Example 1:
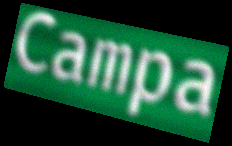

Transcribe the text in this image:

Campa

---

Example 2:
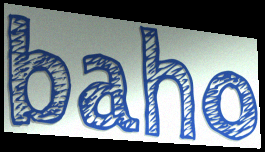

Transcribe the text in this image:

baho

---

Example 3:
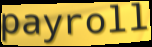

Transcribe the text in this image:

payroll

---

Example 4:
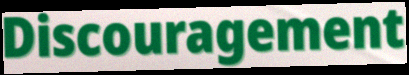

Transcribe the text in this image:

Discouragement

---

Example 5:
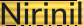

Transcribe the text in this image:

Nirinil